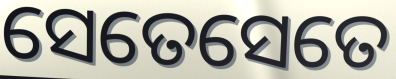
ସେତେସେତେ